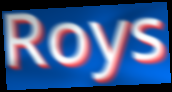
Roys